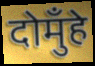
दोमुँहे